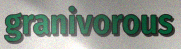
granivorous